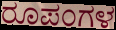
ರೂಪಂಗಳ